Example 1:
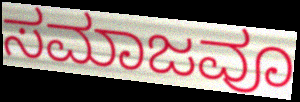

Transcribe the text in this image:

ಸಮಾಜವೂ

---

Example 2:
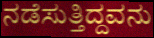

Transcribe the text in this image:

ನಡೆಸುತ್ತಿದ್ದವನು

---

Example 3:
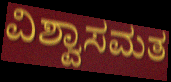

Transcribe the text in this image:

ವಿಶ್ವಾಸಮತ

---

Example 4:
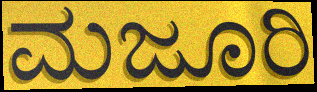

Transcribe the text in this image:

ಮಜೂರಿ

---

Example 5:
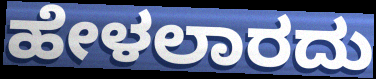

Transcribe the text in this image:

ಹೇಳಲಾರದು